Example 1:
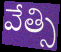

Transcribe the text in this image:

వేత్సి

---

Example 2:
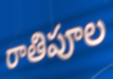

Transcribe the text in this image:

రాతిపూల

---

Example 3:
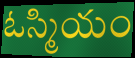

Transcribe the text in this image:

ఓస్మియం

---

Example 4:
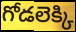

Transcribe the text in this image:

గోడలెక్కి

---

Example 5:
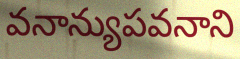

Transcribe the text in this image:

వనాన్యుపవనాని